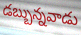
డబ్బున్నవాడు